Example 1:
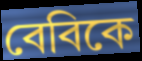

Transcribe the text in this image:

বেবিকে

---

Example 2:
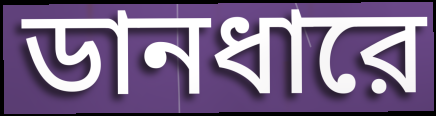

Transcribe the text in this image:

ডানধারে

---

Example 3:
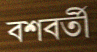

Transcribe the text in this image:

বশবর্তী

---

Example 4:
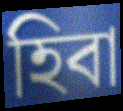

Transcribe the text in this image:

হিবা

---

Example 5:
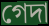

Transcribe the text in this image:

গেদা